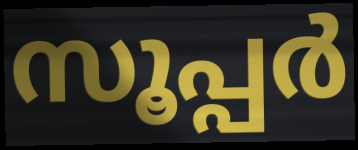
സൂപ്പർ